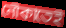
নৌকাতেই